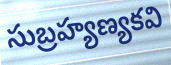
సుబ్రహ్యణ్యకవి